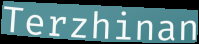
Terzhinan